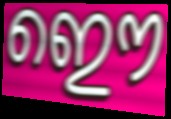
ഇൌ